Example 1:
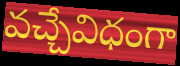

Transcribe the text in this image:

వచ్చేవిధంగా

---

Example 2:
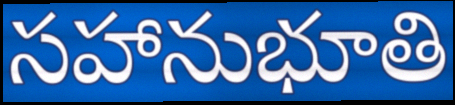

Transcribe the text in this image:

సహానుభూతి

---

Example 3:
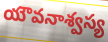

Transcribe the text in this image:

యౌవనాశ్వస్య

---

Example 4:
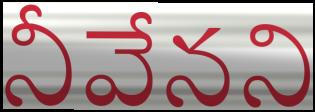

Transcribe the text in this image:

నీవేనని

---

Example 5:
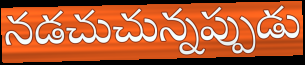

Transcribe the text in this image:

నడచుచున్నప్పుడు